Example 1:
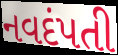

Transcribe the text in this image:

નવદંપતી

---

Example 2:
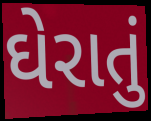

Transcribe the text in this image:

ઘેરાતું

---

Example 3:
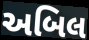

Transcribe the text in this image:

અબિલ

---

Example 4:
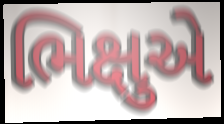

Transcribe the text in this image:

ભિક્ષુએ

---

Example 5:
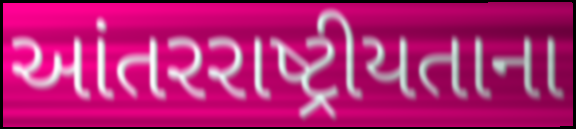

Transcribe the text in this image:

આંતરરાષ્ટ્રીયતાના